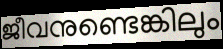
ജീവനുണ്ടെങ്കിലും